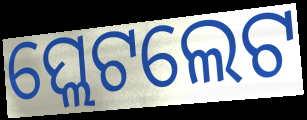
ପ୍ଲେଟଲେଟ